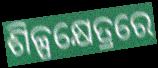
ଶିଳ୍ପକ୍ଷେତ୍ରରେ